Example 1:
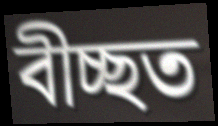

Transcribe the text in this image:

বীচ্ছত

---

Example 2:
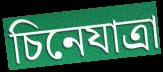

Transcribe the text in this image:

চিনেযাত্ৰা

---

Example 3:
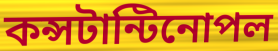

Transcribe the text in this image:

কন্সটান্টিনোপল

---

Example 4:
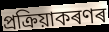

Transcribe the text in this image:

প্ৰক্ৰিয়াকৰণৰ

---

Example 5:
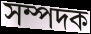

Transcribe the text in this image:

সম্পদক